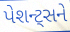
પેશન્ટ્સને